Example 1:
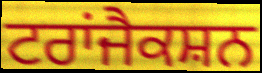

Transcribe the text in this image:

ਟਰਾਂਜੈਕਸ਼ਨ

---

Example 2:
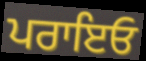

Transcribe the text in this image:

ਪਰਾਇਓ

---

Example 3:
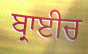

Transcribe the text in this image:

ਬ੍ਰਾਈਚ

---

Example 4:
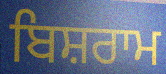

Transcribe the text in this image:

ਬਿਸ਼ਰਾਮ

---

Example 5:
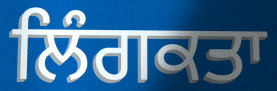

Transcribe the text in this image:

ਲਿੰਗਕਤਾ